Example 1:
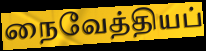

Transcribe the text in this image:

நைவேத்தியப்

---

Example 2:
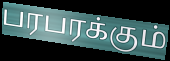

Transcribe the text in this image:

பரபரக்கும்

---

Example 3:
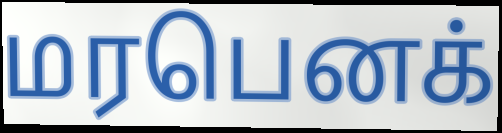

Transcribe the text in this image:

மரபெனக்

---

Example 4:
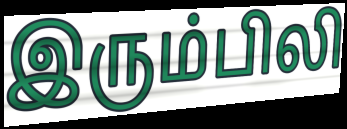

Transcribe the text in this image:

இரும்பிலி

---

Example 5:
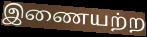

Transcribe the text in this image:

இணையற்ற